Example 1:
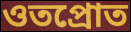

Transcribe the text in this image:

ওতপ্রোত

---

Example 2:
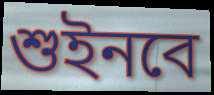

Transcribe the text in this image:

শুইনবে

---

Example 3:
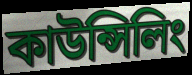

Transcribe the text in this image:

কাউন্সিলিং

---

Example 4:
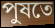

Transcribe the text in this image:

পুষতে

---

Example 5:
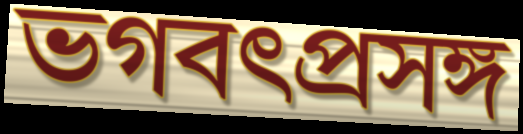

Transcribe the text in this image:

ভগবৎপ্রসঙ্গ